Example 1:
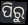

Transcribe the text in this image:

ପିରୁ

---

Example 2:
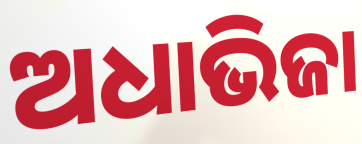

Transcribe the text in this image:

ଅଧାଭିଜା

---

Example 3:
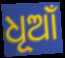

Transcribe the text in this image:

ଧୂଆଁ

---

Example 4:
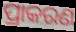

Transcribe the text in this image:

ପ୍ରାକରଣ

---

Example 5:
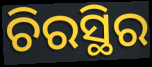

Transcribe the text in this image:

ଚିରସ୍ଥିର